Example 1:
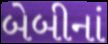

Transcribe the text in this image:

બેબીનાં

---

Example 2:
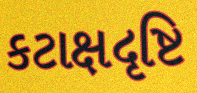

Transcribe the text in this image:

કટાક્ષદૃષ્ટિ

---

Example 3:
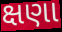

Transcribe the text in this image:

ક્ષણા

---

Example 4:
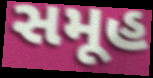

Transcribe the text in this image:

સમૂહ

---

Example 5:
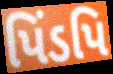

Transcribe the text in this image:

પિંડપિ